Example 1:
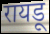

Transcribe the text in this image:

रायडू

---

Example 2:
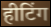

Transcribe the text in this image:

हीटिंग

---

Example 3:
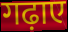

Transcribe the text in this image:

गढ़ाए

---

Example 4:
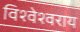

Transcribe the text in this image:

विश्वेश्वराय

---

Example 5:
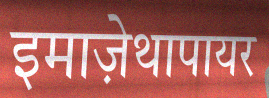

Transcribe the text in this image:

इमाज़ेथापायर